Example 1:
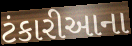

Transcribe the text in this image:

ટંકારીઆના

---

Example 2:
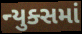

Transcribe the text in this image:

ન્યુક્સમાં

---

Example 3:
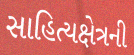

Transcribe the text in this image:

સાહિત્યક્ષેત્રની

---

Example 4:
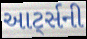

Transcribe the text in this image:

આર્ટ્સની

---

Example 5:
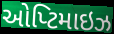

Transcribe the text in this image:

ઓપ્ટિમાઇઝ